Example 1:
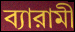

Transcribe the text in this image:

ব্যারামী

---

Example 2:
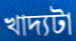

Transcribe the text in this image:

খাদ্যটা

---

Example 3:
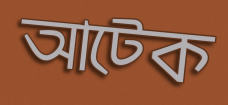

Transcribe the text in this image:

আট্কে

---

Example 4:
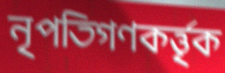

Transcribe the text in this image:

নৃপতিগণকর্ত্তৃক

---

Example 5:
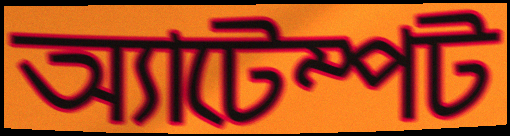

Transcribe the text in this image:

অ্যাটেম্পট